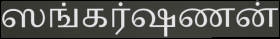
ஸங்கர்ஷணன்